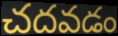
చదవడం